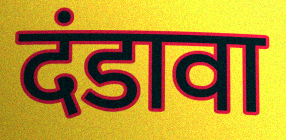
दंडावा